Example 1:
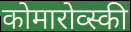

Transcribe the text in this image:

कोमारोव्स्की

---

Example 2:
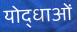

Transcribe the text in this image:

योद्धाओं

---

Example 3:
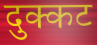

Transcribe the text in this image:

दुक्कट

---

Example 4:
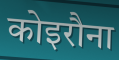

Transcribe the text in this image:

कोइरौना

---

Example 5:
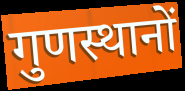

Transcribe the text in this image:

गुणस्थानों